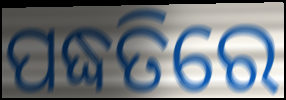
ପଦ୍ଧତିରେ